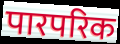
पारपरिक